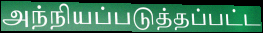
அந்நியப்படுத்தப்பட்ட